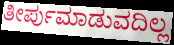
ತೀರ್ಪುಮಾಡುವದಿಲ್ಲ